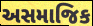
અસમાજિક